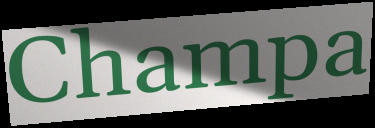
Champa